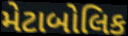
મેટાબોલિક